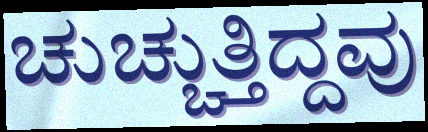
ಚುಚ್ಚುತ್ತಿದ್ದವು